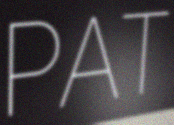
PAT